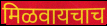
मिळवायचाच